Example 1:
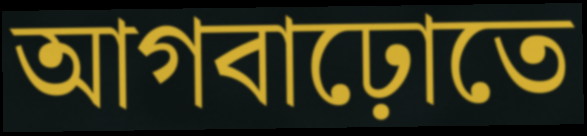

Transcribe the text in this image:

আগবাঢ়োতে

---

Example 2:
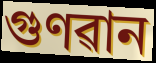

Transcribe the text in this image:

গুণৱান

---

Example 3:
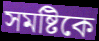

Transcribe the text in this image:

সমষ্টিকে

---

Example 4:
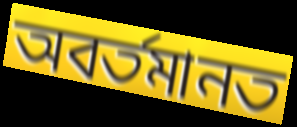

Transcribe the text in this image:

অবৰ্তমানত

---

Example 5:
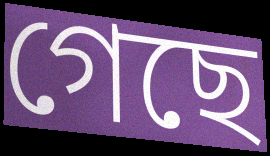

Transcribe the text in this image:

গেছে